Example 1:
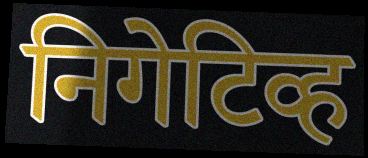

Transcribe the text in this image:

निगेटिव्ह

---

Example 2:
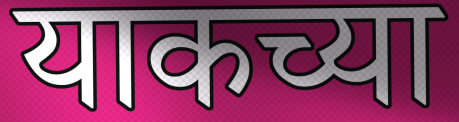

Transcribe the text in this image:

याकच्या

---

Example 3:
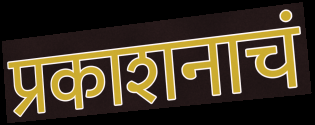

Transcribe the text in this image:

प्रकाशनाचं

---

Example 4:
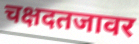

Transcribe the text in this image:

चक्षदतजावर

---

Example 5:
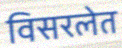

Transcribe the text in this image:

विसरलेत